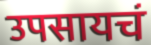
उपसायचं